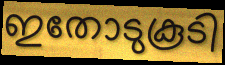
ഇതോടുകൂടി